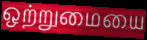
ஒற்றுமையை